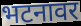
भटनावर